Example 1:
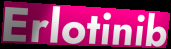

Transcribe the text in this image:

Erlotinib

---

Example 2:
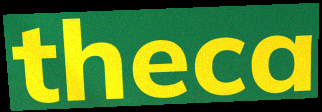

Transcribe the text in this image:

theca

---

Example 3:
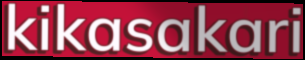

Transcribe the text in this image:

kikasakari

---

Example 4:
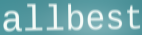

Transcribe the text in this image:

allbest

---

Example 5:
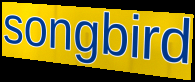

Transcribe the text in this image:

songbird